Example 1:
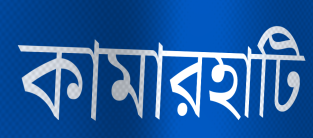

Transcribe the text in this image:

কামারহাটি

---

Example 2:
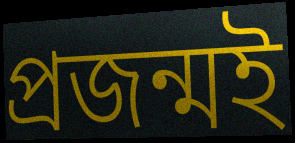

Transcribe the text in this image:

প্রজন্মই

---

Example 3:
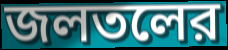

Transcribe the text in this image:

জলতলের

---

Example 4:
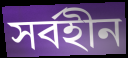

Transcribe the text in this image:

সর্বহীন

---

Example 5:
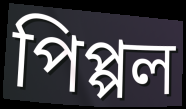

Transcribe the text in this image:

পিপ্পল